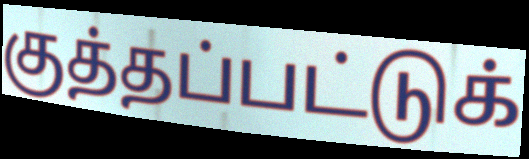
குத்தப்பட்டுக்